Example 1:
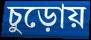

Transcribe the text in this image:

চুড়োয়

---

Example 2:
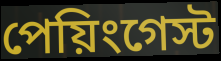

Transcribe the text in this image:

পেয়িংগেস্ট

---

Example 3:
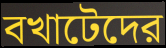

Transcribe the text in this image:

বখাটেদের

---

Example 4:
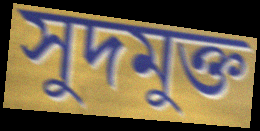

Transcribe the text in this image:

সুদমুক্ত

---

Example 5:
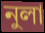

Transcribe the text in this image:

নুলা